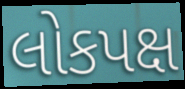
લોકપક્ષ